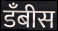
डॅंबीस